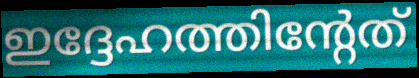
ഇദ്ദേഹത്തിന്റേത്